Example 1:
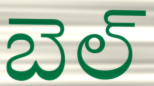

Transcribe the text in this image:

బెల్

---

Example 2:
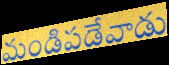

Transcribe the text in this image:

మండిపడేవాడు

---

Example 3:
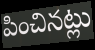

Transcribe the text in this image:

పించినట్లు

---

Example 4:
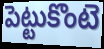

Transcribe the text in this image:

పెట్టుకొంటె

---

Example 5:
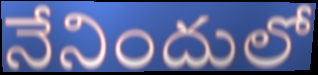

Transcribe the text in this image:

నేనిందులో